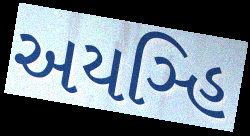
અયઞ્હિ